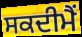
ਸਕਦੀਮੈਂ